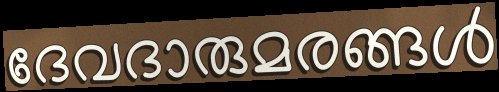
ദേവദാരുമരങ്ങൾ